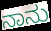
ನಾನು